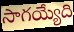
సాగయ్యేది